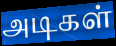
அடிகள்